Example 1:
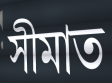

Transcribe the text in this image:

সীমাত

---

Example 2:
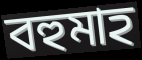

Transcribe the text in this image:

বহুমাহ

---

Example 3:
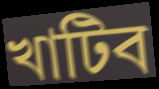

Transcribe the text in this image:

খাটিব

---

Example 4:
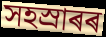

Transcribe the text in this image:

সহস্ৰাৰৰ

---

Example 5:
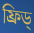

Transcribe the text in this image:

ফ্ৰিড্